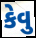
કેવુ